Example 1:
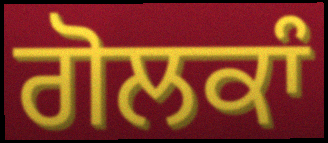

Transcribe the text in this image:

ਗੋਲਕਾੰ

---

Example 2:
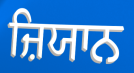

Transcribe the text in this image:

ਜ਼ਿਯਾਨ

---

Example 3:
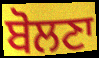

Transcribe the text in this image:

ਬੋਲਣਾ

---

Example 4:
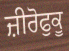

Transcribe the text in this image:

ਜ਼ੀਰੋਫੁਕੂ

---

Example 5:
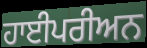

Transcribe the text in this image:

ਹਾਈਪਰੀਅਨ